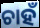
ଚାହଁ